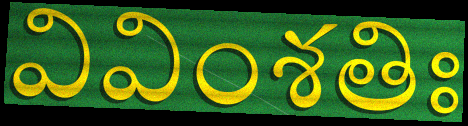
వివింశతిః